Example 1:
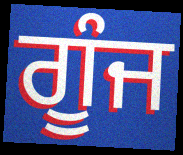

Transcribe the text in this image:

ਗੂੰਜ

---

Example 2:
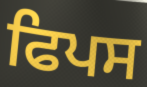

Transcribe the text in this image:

ਫਿਪਸ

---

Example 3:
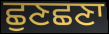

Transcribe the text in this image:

ਛੁਣਛਣਾ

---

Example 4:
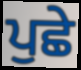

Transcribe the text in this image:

ਪੁਛੇ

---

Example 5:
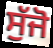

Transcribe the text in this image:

ਸੁੱਜੋ